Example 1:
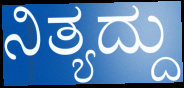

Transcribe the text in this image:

ನಿತ್ಯದ್ದು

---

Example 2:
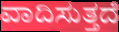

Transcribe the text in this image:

ವಾದಿಸುತ್ತದೆ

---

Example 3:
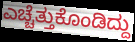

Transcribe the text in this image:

ಎಚ್ಚೆತ್ತುಕೊಂಡಿದ್ದು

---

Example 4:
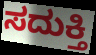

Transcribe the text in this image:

ಸದುಕ್ತಿ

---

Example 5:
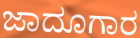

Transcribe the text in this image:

ಜಾದೂಗಾರ